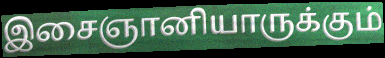
இசைஞானியாருக்கும்